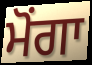
ਮੋਂਗਾ